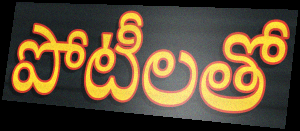
పోటీలతో